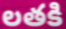
లతకి